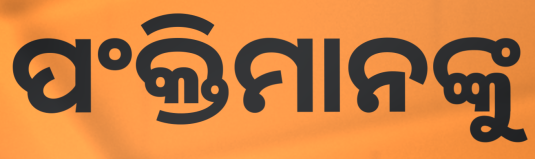
ପଂକ୍ତିମାନଙ୍କୁ